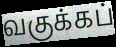
வகுக்கப்